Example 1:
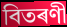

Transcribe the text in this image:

বিতৰণী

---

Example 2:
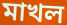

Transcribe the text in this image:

মাখল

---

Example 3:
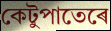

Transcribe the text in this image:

কেটুপাতেৰে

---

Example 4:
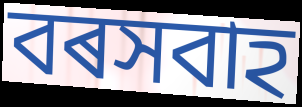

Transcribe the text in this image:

বৰসবাহ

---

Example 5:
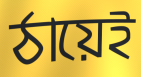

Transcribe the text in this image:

ঠায়েই